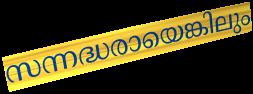
സന്നദ്ധരായെങ്കിലും